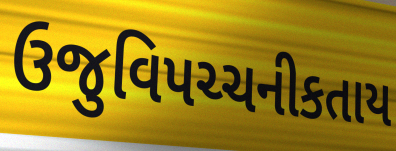
ઉજુવિપચ્ચનીકતાય